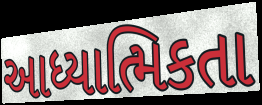
આધ્યાત્મિકતા